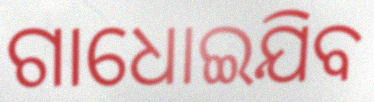
ଗାଧୋଇଯିବ